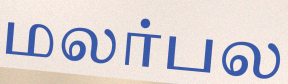
மலர்பல